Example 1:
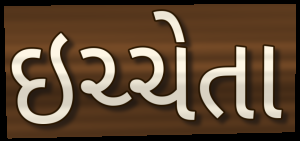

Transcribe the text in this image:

ઇચ્ચેતા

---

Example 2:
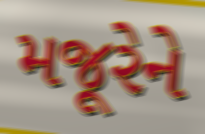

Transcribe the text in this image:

મજૂરેને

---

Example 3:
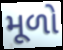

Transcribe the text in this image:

મૂળો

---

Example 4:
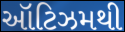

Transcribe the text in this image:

ઑટિઝમથી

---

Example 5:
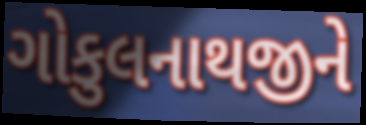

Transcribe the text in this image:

ગોકુલનાથજીને